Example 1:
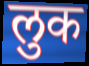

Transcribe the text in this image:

लुक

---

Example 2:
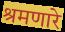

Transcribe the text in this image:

श्रमणारे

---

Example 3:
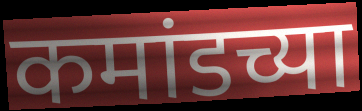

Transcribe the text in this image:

कमांडच्या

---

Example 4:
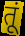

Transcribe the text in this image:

तूं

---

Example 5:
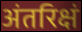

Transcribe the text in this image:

अंतरिक्षं